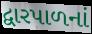
દ્વારપાળનાં